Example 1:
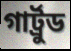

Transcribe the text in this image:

গার্ট্রুড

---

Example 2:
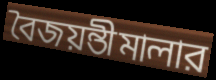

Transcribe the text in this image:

বৈজয়ন্তীমালার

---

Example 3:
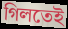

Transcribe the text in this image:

গিলতেই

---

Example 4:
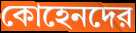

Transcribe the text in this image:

কোহেনদের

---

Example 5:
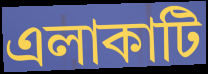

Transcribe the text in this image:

এলাকাটি